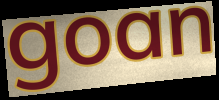
goan